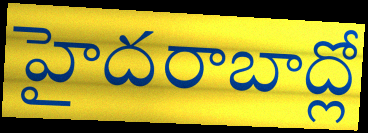
హైదరాబాద్లో